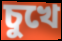
চুখে